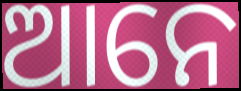
ଆନେ